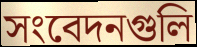
সংবেদনগুলি